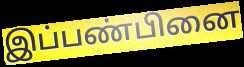
இப்பண்பினை